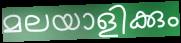
മലയാളിക്കും